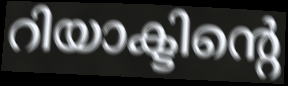
റിയാക്ടിന്റെ